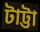
টাট্টা